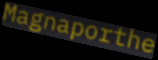
Magnaporthe